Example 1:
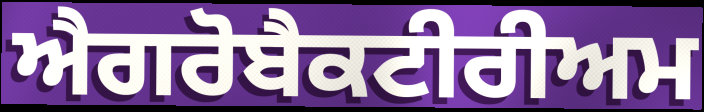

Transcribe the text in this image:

ਐਗਰੋਬੈਕਟੀਰੀਅਮ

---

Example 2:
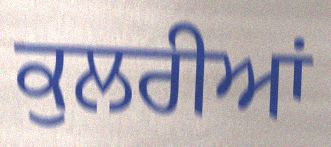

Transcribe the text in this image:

ਕੁਲਰੀਆਂ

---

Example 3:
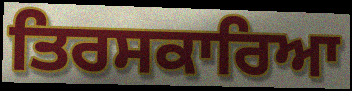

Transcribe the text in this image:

ਤਿਰਸਕਾਰਿਆ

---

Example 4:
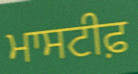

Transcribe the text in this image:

ਮਾਸਟੀਫ਼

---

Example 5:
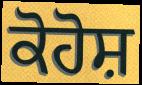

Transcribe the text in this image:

ਕੋਹੋਸ਼